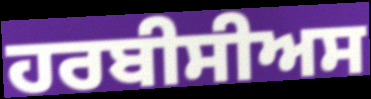
ਹਰਬੀਸੀਅਸ